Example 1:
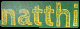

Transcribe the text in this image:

natthi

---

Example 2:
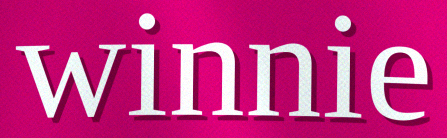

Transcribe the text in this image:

winnie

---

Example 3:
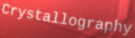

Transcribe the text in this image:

Crystallography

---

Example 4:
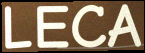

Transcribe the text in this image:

LECA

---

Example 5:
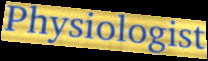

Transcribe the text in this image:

Physiologist